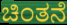
ಚಿಂತನೆ